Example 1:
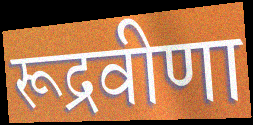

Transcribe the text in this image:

रूद्रवीणा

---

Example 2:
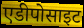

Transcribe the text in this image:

एडीपोसाइट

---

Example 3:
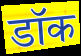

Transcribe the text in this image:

डॉक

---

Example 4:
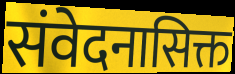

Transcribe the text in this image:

संवेदनासिक्त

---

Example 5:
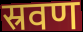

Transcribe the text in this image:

स्रवण